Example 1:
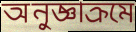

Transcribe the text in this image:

অনুজ্ঞাক্রমে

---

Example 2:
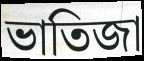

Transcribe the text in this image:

ভাতিজা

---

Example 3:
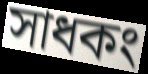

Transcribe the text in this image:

সাধকং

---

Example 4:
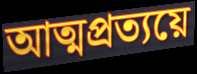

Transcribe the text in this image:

আত্মপ্রত্যয়ে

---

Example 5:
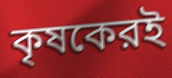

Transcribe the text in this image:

কৃষকেরই